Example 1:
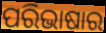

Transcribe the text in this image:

ପରିଭାଷାର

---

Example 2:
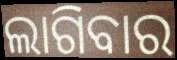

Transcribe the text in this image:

ଲାଗିବାର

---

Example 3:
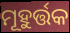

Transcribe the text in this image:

ମୂହୁର୍ତ୍ତକ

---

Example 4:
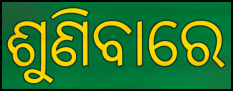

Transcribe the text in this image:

ଶୁଣିବାରେ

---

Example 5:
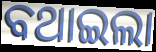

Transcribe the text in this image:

ବଥାଇଲା